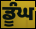
ਡੂੰਘ